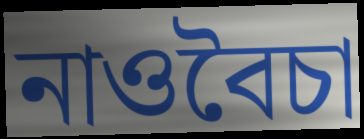
নাওবৈচা